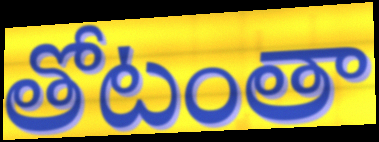
తోటంతా